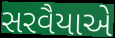
સરવૈયાએ